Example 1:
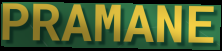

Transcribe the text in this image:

PRAMANE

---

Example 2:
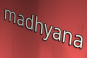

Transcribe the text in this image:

madhyana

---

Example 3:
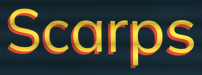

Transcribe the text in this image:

Scarps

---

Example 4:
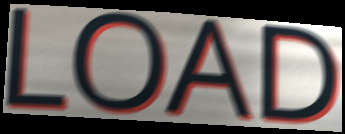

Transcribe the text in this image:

LOAD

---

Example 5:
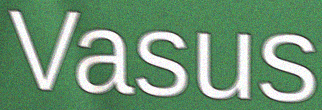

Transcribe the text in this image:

Vasus